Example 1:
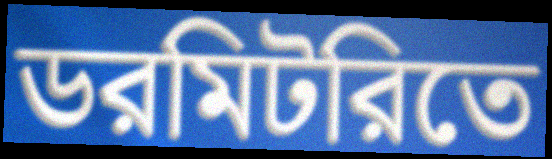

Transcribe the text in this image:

ডরমিটরিতে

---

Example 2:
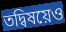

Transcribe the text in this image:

তদ্বিষয়েও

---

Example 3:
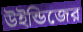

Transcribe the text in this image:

উইন্ডিজের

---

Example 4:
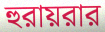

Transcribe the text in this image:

হুরায়রার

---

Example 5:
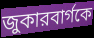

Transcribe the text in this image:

জুকারবার্গকে